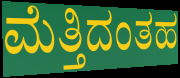
ಮೆತ್ತಿದಂತಹ